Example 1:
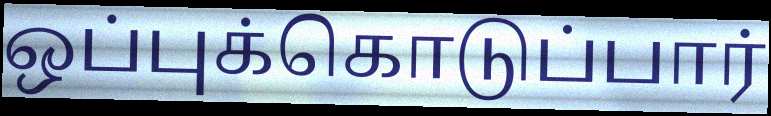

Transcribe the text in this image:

ஒப்புக்கொடுப்பார்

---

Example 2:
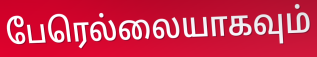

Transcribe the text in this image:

பேரெல்லையாகவும்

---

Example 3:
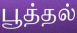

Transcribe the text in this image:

பூத்தல்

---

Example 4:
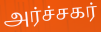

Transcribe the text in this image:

அர்ச்சகர்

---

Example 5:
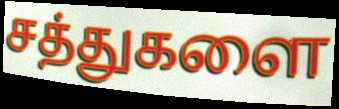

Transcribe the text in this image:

சத்துகளை